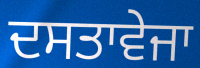
ਦਸਤਾਵੇਜਾ